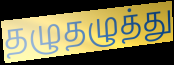
தழுதழுத்து